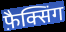
फ़ैक्सिंग